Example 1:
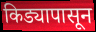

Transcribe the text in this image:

किड्यापासून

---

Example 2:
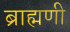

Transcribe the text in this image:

ब्राह्मणी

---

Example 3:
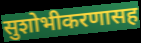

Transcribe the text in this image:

सुशोभीकरणासह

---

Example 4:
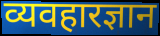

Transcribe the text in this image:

व्यवहारज्ञान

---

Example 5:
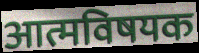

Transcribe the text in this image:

आत्मविषयक